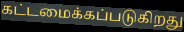
கட்டமைக்கப்படுகிறது